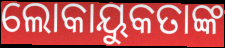
ଲୋକାୟୁକତାଙ୍କ